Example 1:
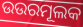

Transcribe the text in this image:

ଉଉରମୂଲକ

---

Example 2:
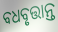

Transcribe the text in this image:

ବଧବୃତ୍ତାନ୍ତ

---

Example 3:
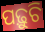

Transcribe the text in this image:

ପଢ଼ୁଚି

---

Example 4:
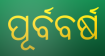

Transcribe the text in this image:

ପୂର୍ବବର୍ଷ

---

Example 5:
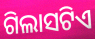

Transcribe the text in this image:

ଗିଲାସଟିଏ